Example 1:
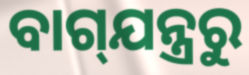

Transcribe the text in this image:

ବାଗ୍‌ଯନ୍ତ୍ରରୁ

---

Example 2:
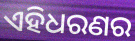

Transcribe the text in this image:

ଏହିଧରଣର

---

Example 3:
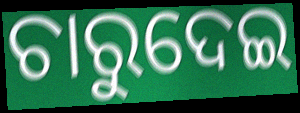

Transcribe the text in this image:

ଚାରୁଦେଇ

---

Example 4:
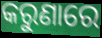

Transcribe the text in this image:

କରୁଣାରେ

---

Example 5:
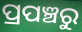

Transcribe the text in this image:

ପ୍ରପଞ୍ଚରୁ